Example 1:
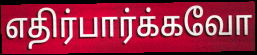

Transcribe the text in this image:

எதிர்பார்க்கவோ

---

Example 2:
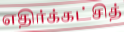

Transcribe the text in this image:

எதிர்க்கட்சித்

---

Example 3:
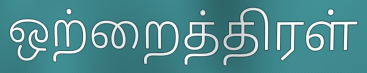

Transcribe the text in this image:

ஒற்றைத்திரள்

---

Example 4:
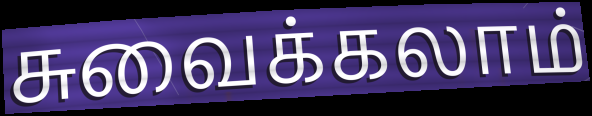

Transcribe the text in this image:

சுவைக்கலாம்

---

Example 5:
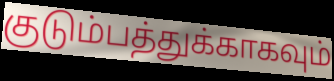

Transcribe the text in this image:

குடும்பத்துக்காகவும்